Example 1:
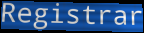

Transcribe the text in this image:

Registrar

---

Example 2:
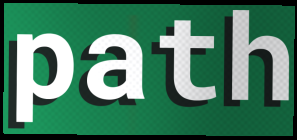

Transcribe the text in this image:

path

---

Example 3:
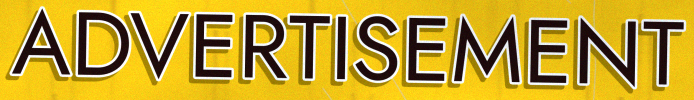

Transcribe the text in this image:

ADVERTISEMENT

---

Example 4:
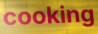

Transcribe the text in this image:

cooking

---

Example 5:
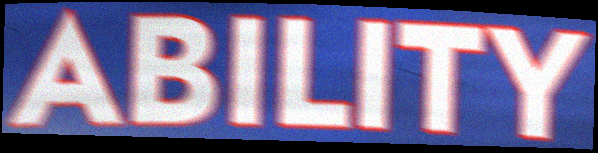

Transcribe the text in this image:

ABILITY